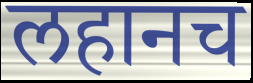
लहानच